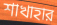
শাখাহার